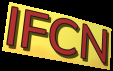
IFCN